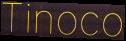
Tinoco